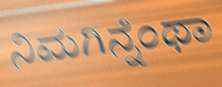
ನಿಮಗಿನ್ನೆಂಥಾ